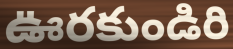
ఊరకుండిరి